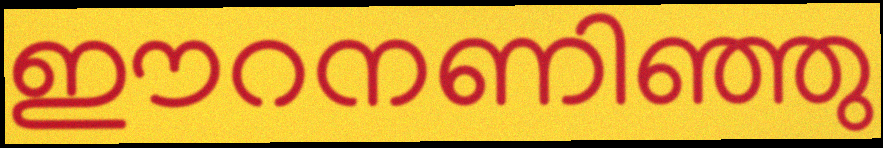
ഈറനണിഞ്ഞു